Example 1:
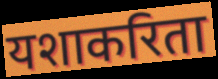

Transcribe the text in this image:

यशाकरिता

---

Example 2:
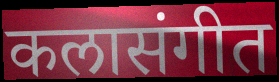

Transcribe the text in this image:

कलासंगीत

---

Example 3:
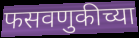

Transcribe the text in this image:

फसवणुकीच्या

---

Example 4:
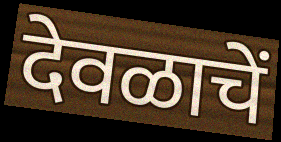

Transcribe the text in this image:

देवळाचें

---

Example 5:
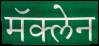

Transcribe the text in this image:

मॅक्लेन